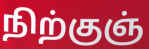
நிற்குஞ்